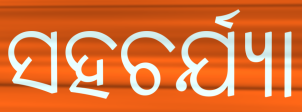
ସହଚର୍ଯ୍ୟା